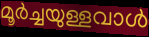
മൂർച്ചയുള്ളവാൾ